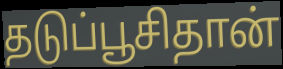
தடுப்பூசிதான்